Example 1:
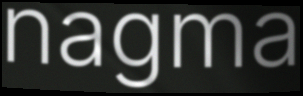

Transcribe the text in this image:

nagma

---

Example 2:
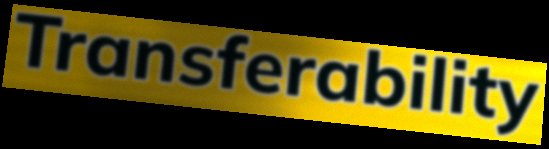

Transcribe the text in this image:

Transferability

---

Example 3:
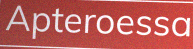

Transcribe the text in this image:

Apteroessa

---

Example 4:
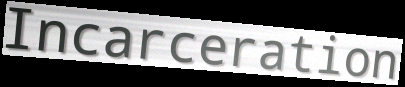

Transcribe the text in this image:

Incarceration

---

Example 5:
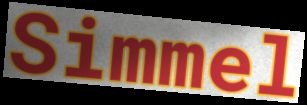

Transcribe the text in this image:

Simmel